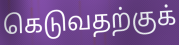
கெடுவதற்குக்